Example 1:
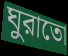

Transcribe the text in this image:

ঘুরাতো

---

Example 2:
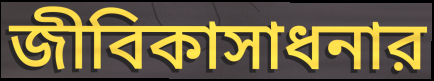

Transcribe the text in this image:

জীবিকাসাধনার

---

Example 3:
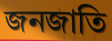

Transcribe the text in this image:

জনজাতি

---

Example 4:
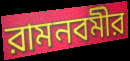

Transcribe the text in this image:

রামনবমীর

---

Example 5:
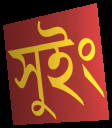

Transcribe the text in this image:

সুইং